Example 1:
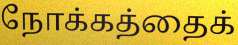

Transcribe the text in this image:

நோக்கத்தைக்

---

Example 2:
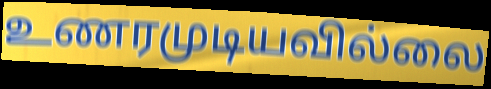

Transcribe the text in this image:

உணரமுடியவில்லை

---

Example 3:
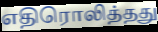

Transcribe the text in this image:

எதிரொலித்தது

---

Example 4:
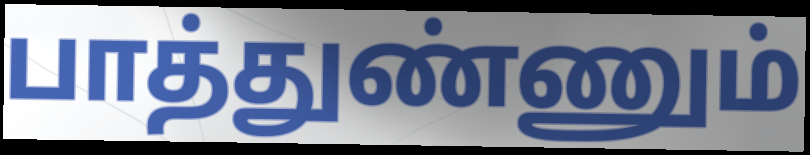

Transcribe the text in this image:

பாத்துண்ணும்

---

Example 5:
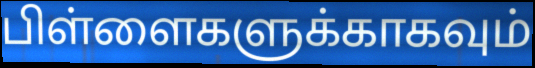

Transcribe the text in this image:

பிள்ளைகளுக்காகவும்